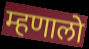
म्हणालो